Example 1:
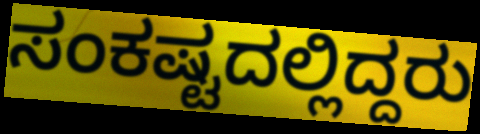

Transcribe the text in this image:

ಸಂಕಷ್ಟದಲ್ಲಿದ್ದರು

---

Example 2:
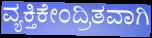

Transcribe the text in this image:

ವ್ಯಕ್ತಿಕೇಂದ್ರಿತವಾಗಿ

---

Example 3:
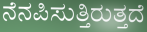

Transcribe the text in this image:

ನೆನಪಿಸುತ್ತಿರುತ್ತದೆ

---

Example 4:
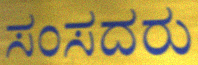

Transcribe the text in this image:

ಸಂಸದರು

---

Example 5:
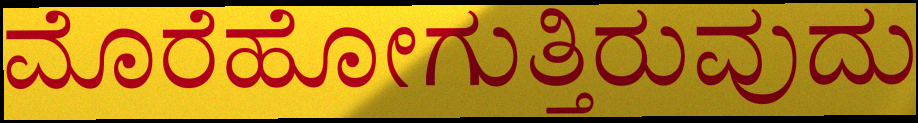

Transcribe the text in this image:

ಮೊರೆಹೋಗುತ್ತಿರುವುದು